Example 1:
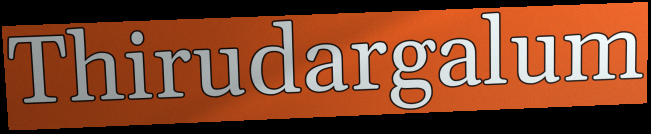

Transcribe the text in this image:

Thirudargalum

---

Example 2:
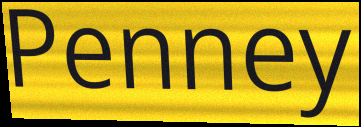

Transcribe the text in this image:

Penney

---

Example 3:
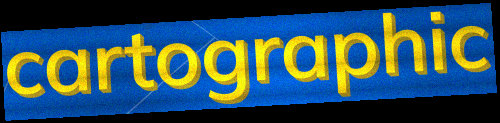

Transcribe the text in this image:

cartographic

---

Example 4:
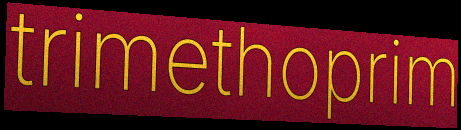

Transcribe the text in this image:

trimethoprim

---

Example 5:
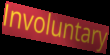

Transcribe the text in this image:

Involuntary